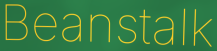
Beanstalk